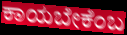
ಕಾಯಬೇಕೆಂಬ